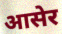
आसेर